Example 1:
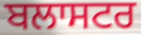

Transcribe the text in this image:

ਬਲਾਸਟਰ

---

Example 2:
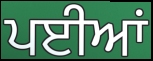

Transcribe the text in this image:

ਪਈਆਂ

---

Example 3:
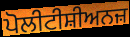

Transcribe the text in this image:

ਪੋਲੀਟੀਸ਼ੀਅਨਜ਼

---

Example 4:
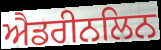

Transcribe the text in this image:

ਐਡਰੀਨਲਿਨ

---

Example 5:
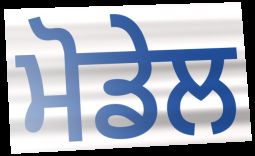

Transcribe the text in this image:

ਮੋਡੇਲ